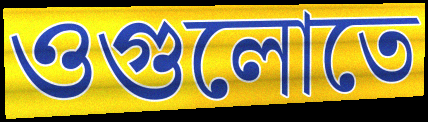
ওগুলোতে